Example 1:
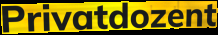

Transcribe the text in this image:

Privatdozent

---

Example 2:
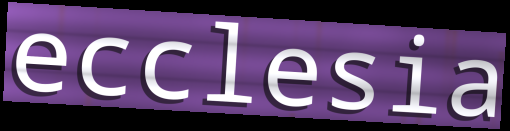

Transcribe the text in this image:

ecclesia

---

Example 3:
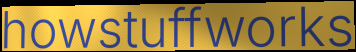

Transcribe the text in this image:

howstuffworks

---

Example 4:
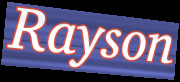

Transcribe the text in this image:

Rayson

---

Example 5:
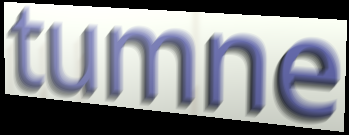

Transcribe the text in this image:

tumne